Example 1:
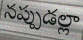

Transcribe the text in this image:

నప్పుడల్లా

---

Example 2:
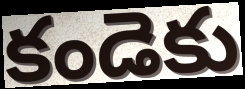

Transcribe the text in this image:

కండెకు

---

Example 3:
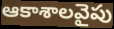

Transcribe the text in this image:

ఆకాశాలవైపు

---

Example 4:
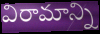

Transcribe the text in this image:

విరామాన్ని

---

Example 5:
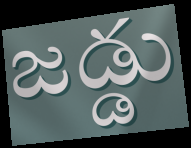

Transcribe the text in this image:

జడ్డు